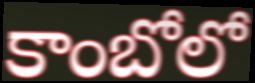
కాంబోలో